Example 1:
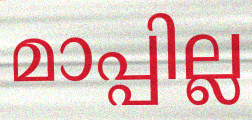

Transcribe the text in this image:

മാപ്പില്ല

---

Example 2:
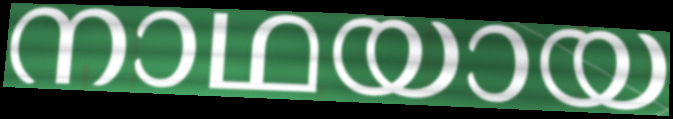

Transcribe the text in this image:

നാഥയായ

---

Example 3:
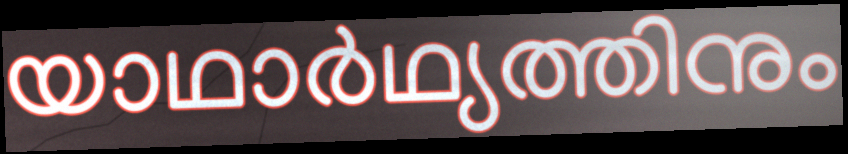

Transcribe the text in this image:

യാഥാർഥ്യത്തിനും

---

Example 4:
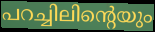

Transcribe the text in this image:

പറച്ചിലിന്റെയും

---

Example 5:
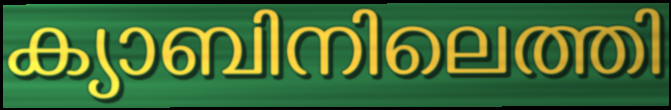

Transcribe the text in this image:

ക്യാബിനിലെത്തി